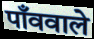
पाँववाले